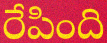
రేపింది